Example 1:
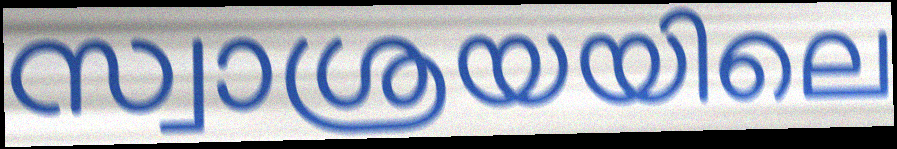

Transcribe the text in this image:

സ്വാശ്രയയിലെ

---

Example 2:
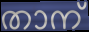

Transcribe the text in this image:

താന്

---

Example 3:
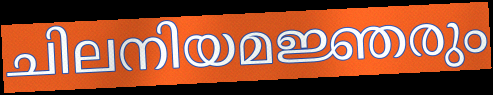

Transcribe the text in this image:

ചിലനിയമജ്ഞരും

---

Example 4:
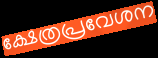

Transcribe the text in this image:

ക്ഷേത്രപ്രവേശന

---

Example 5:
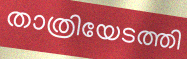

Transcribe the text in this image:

താത്രിയേടത്തി